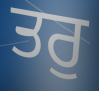
ਤਰੁ